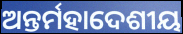
ଅନ୍ତର୍ମହାଦେଶୀୟ